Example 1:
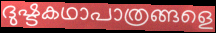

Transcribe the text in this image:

ദുഷ്ടകഥാപാത്രങ്ങളെ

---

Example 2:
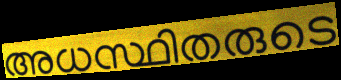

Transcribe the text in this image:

അധസ്ഥിതരുടെ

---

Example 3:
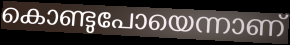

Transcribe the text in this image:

കൊണ്ടുപോയെന്നാണ്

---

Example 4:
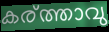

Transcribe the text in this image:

കര്ത്താവു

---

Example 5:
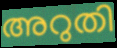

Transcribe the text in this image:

അറുതി